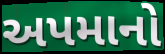
અપમાનો